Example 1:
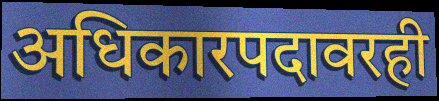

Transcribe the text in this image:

अधिकारपदावरही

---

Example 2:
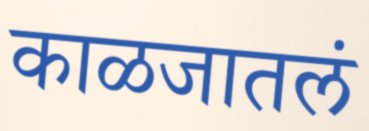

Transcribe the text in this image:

काळजातलं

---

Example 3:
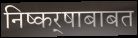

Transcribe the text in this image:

निष्कर्षाबाबत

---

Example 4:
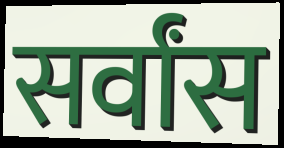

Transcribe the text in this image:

सर्वांस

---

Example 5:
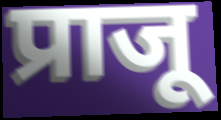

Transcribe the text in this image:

प्राजू